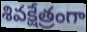
శివక్షేత్రంగా